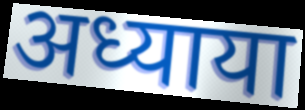
अध्याया